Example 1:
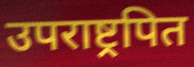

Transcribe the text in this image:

उपराष्ट्रपित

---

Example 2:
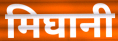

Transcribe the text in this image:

मिघानी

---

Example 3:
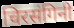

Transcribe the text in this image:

चिरसंगिनी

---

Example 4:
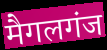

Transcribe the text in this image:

मैगलगंज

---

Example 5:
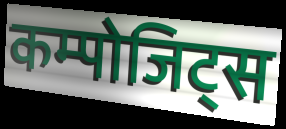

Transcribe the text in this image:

कम्पोजिट्स